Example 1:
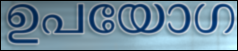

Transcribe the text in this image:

ഉപയോഗ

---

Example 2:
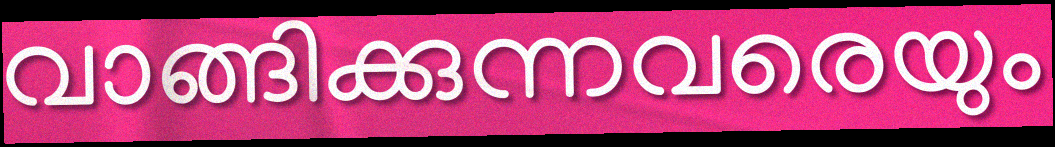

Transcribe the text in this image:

വാങ്ങിക്കുന്നവരെയും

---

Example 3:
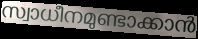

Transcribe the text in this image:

സ്വാധീനമുണ്ടാക്കാൻ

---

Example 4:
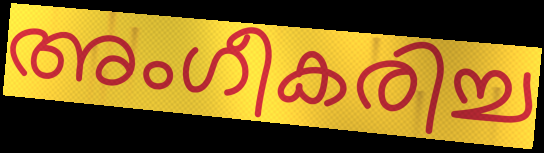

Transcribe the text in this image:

അംഗീകരിച്ച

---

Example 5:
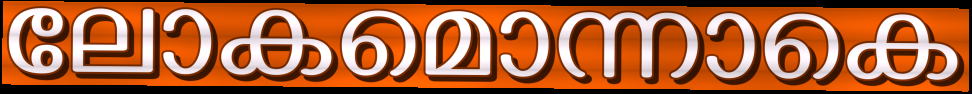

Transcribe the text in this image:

ലോകമൊന്നാകെ